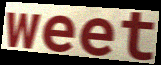
weet